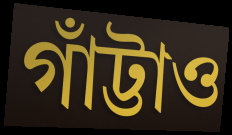
গাঁট্টাও